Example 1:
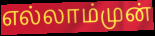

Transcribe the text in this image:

எல்லாம்முன்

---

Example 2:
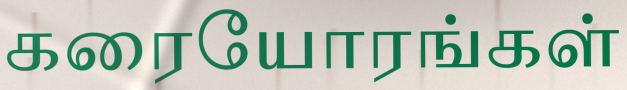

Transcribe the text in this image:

கரையோரங்கள்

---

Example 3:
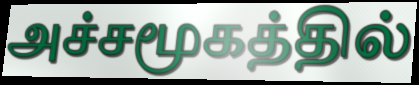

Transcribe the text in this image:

அச்சமூகத்தில்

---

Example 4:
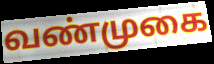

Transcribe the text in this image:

வண்முகை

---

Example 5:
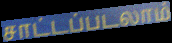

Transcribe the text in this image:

சாட்டப்படலாம்